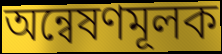
অন্বেষণমূলক